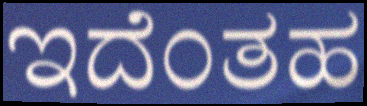
ಇದೆಂತಹ